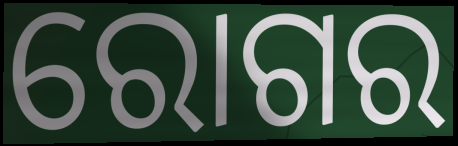
ରୋଗର